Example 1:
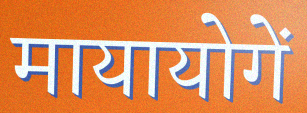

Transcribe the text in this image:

मायायोगें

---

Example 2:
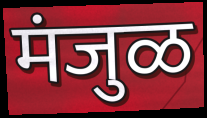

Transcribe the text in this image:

मंजुळ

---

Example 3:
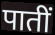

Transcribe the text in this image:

पातीं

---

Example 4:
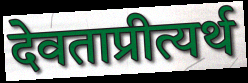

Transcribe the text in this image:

देवताप्रीत्यर्थ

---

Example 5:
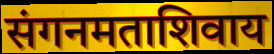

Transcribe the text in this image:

संगनमताशिवाय